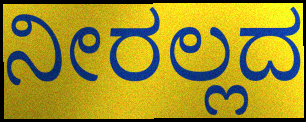
ನೀರಲ್ಲದ